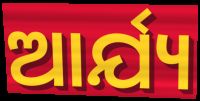
ଆର୍ଯ୍ୟ